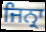
ਜਿਨ੍ਰਾ